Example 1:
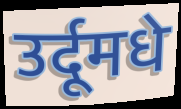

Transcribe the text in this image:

उर्दूमधे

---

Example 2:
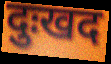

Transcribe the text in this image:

दुःखद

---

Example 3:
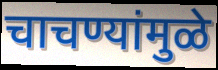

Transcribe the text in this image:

चाचण्यांमुळे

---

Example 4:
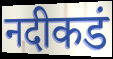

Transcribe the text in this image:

नदीकडं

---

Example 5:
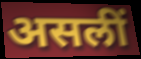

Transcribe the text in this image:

असलीं